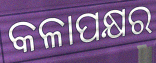
କଳାପକ୍ଷର